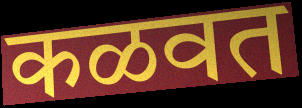
कळवत